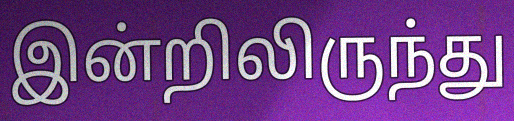
இன்றிலிருந்து